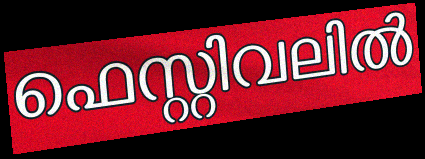
ഫെസ്റ്റിവലിൽ